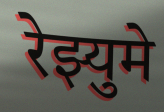
रेझ्युमे